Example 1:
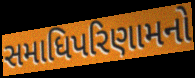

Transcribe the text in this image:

સમાધિપરિણામનો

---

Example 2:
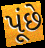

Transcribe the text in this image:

પૂંછે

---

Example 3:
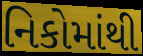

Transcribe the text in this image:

નિકોમાંથી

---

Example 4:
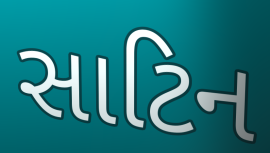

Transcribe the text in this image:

સાટિન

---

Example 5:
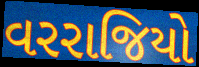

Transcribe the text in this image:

વરરાજિયો